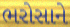
ભરોસાને